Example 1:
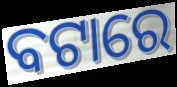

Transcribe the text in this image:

ବଟାରେ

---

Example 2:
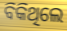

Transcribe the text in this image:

ବିକିଥିଲେ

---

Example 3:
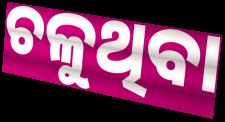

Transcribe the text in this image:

ଚଳୁଥିବା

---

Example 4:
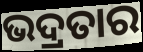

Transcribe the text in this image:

ଭଦ୍ରତାର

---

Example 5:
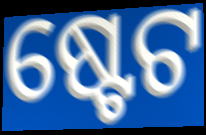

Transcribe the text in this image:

ଷ୍ଟେଟ